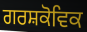
ਗਰਸ਼ਕੋਵਿਕ